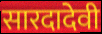
सारदादेवी